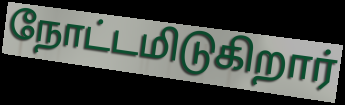
நோட்டமிடுகிறார்